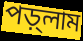
পড়্‌লাম